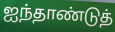
ஐந்தாண்டுத்